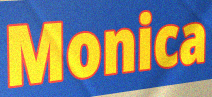
Monica